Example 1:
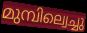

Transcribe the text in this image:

മുമ്പില്വെച്ചു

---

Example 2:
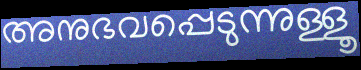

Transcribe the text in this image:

അനുഭവപ്പെടുന്നുള്ളൂ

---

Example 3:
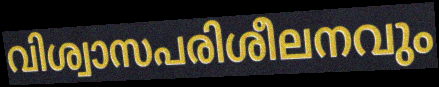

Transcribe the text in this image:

വിശ്വാസപരിശീലനവും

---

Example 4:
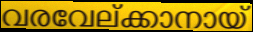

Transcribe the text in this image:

വരവേല്ക്കാനായ്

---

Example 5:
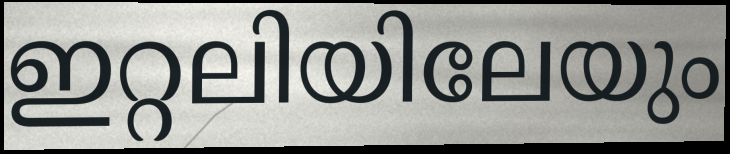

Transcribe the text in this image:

ഇറ്റലിയിലേയും